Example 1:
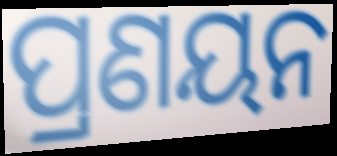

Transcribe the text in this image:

ପ୍ରଣୟନ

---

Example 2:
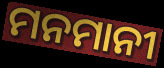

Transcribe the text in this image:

ମନମାନୀ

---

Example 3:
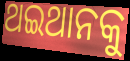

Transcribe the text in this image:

ଥଇଥାନକୁ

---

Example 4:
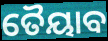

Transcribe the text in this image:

ତୈୟାବ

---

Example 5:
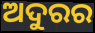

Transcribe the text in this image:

ଅଦୁରର